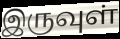
இருவுள்